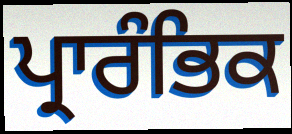
ਪ੍ਰਾਰੰਭਿਕ